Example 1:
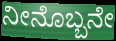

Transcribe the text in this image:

ನೀನೊಬ್ಬನೇ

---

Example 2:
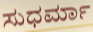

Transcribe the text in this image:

ಸುಧರ್ಮಾ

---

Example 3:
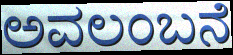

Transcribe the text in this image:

ಅವಲಂಬನೆ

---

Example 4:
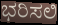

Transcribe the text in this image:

ಭರಿಸಲಿ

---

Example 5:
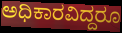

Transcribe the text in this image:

ಅಧಿಕಾರವಿದ್ದರೂ